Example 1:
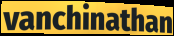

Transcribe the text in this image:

vanchinathan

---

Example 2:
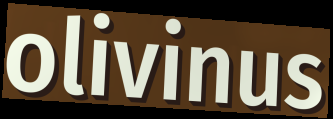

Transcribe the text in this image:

olivinus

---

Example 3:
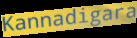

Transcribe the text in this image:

Kannadigara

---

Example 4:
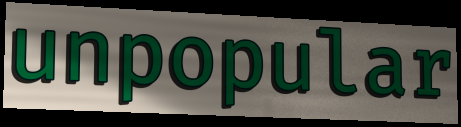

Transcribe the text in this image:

unpopular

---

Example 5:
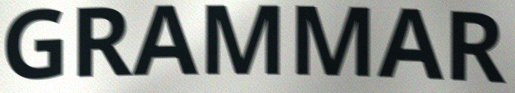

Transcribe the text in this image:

GRAMMAR